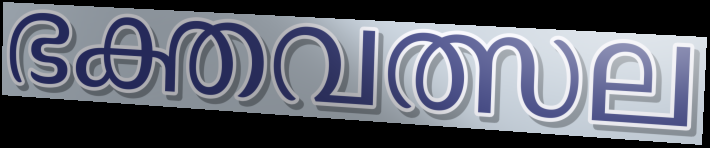
ഭക്തവത്സല